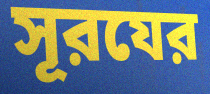
সূরযের